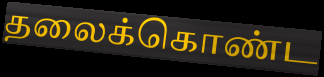
தலைக்கொண்ட